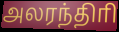
அலரந்திரி